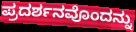
ಪ್ರದರ್ಶನವೊಂದನ್ನು